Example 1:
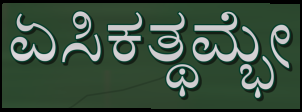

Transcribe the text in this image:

ಏಸಿಕತ್ಥಮ್ಭೇ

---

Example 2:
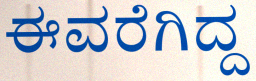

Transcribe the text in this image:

ಈವರೆಗಿದ್ದ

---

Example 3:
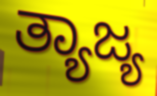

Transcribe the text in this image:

ತ್ಯಾಜ್ಯ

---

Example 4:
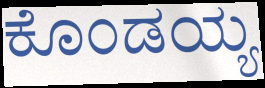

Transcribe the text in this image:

ಕೊಂಡಯ್ಯ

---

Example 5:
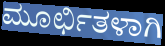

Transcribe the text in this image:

ಮೂರ್ಛಿತಳಾಗಿ